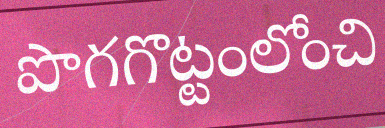
పొగగొట్టంలోంచి